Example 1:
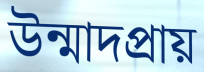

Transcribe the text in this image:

উন্মাদপ্রায়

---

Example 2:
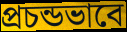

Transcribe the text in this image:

প্রচন্ডভাবে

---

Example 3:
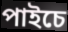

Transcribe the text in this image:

পাইচে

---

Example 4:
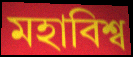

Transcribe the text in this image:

মহাবিশ্ব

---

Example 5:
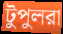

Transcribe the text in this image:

টুপুলরা